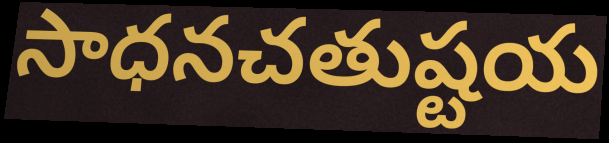
సాధనచతుష్టయ